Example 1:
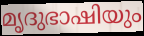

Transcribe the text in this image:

മൃദുഭാഷിയും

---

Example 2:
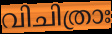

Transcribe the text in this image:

വിചിത്രാഃ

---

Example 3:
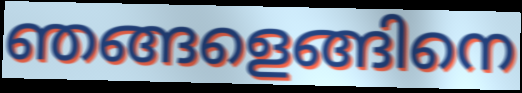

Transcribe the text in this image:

ഞങ്ങളെങ്ങിനെ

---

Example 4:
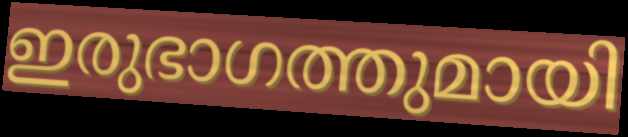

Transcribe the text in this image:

ഇരുഭാഗത്തുമായി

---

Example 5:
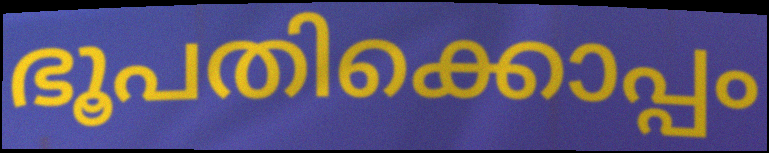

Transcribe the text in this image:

ഭൂപതിക്കൊപ്പം